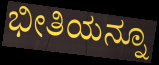
ಭೀತಿಯನ್ನೂ